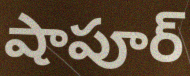
షాపూర్